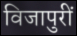
विजापुरीं